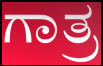
ಗಾತ್ರ